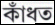
কাঁধত